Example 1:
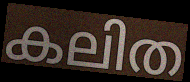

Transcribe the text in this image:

കലിത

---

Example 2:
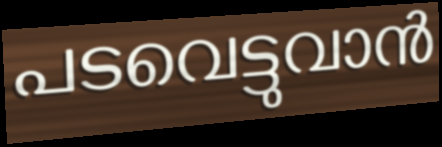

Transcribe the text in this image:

പടവെട്ടുവാൻ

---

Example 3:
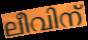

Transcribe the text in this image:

ലീവിന്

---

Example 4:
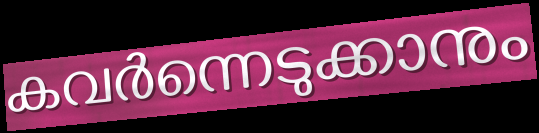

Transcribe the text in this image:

കവർന്നെടുക്കാനും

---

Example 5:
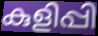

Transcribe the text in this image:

കുളിപ്പി